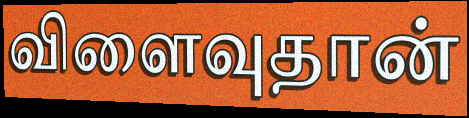
விளைவுதான்